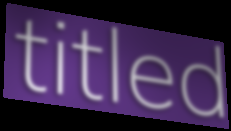
titled